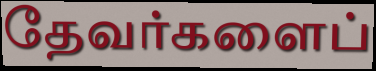
தேவர்களைப்